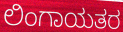
ಲಿಂಗಾಯತರ